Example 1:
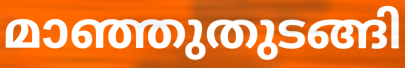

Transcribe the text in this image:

മാഞ്ഞുതുടങ്ങി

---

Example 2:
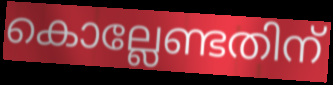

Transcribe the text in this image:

കൊല്ലേണ്ടതിന്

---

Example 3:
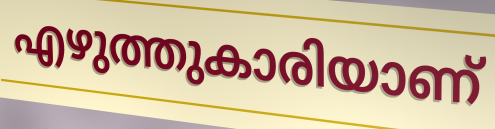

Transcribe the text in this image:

എഴുത്തുകാരിയാണ്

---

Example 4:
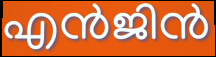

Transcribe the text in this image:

എൻജിൻ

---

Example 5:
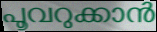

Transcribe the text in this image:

പൂവറുക്കാൻ